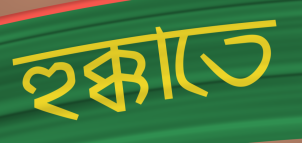
হুক্কাতে